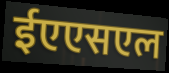
ईएएसएल